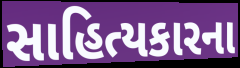
સાહિત્યકારના